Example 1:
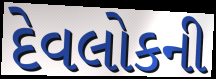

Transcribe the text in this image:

દેવલોકની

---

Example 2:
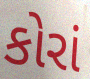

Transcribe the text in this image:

કોરાં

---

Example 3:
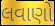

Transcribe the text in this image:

લવાણો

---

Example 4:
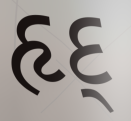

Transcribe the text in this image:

હૃદ્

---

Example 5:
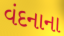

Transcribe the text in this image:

વંદનાના